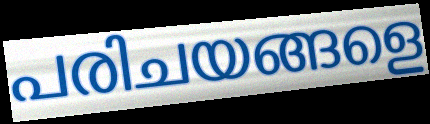
പരിചയങ്ങളെ